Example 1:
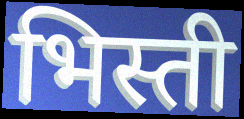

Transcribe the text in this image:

भिस्ती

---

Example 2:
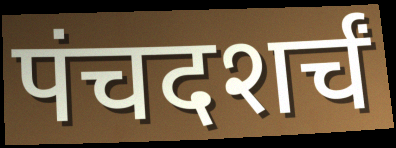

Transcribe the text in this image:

पंचदशर्चं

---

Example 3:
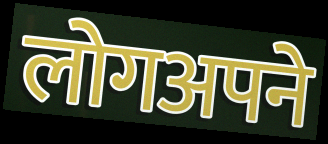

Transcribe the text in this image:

लोगअपने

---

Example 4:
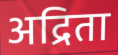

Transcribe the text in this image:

अद्रिता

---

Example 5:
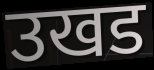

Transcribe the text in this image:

उखड